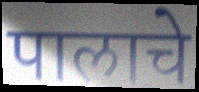
पालाचे